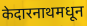
केदारनाथमधून